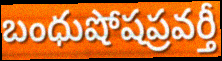
బంధుషోషప్రవర్తీ